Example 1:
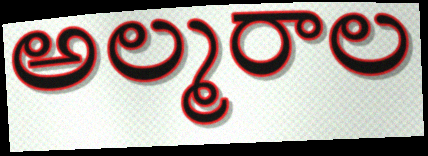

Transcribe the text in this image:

అల్మరాల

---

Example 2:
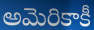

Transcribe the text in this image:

అమెరికాకీ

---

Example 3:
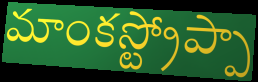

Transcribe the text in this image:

మాంకస్ట్రోప్పా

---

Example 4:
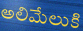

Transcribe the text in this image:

అలిమేలుకి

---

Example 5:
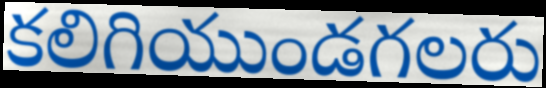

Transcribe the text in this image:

కలిగియుండగలరు